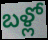
బళ్లో